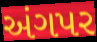
અંગપર